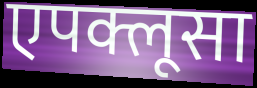
एपक्लूसा